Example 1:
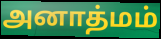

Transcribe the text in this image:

அனாத்மம்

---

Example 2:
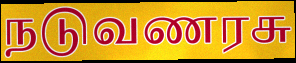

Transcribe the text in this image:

நடுவணரசு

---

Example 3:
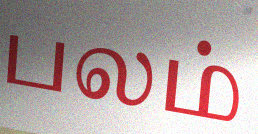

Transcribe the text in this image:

பலம்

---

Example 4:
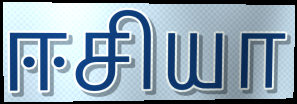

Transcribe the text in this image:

ஈசியா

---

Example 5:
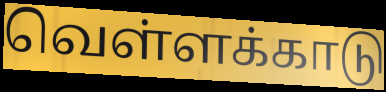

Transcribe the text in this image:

வெள்ளக்காடு